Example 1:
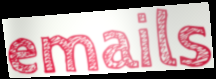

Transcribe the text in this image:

emails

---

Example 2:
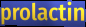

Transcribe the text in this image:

prolactin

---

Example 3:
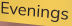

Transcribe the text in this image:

Evenings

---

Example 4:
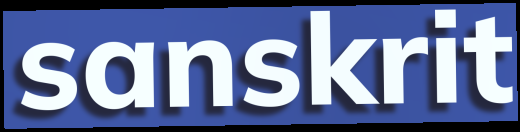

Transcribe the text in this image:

sanskrit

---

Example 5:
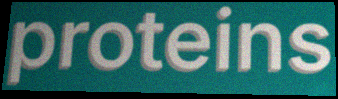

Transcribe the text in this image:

proteins